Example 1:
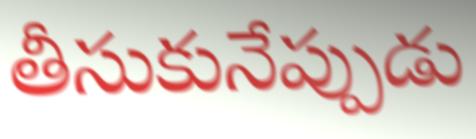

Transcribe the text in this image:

తీసుకునేప్పుడు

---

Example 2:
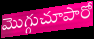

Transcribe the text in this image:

మొగ్గుచూపారో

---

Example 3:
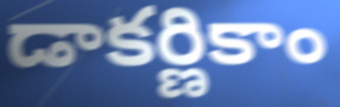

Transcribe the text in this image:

డాకర్ణికాం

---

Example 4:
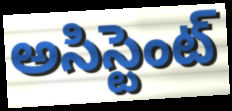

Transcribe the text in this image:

అసిస్టెంట్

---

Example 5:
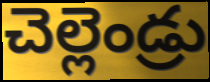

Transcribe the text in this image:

చెల్లెండ్రు